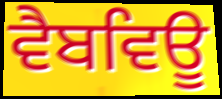
ਵੈਬਵਿਊ